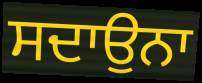
ਸਦਾਉਨਾ